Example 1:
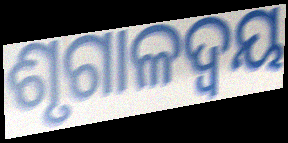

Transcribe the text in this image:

ଶୃଗାଳଦ୍ୱୟ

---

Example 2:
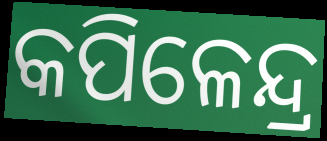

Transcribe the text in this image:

କପିଳେନ୍ଦ୍ର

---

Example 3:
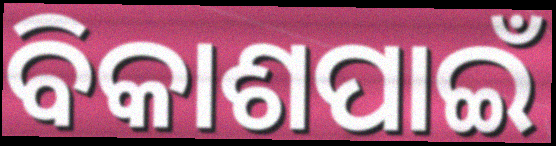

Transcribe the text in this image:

ବିକାଶପାଇଁ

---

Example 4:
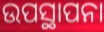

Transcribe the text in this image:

ଉପସ୍ଥାପନା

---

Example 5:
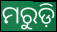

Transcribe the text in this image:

ମରୁଡ଼ି